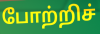
போற்றிச்